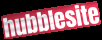
hubblesite